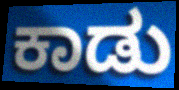
ಕಾಡು